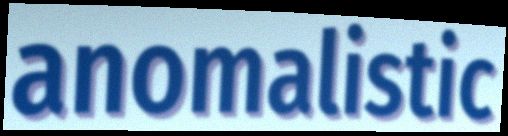
anomalistic